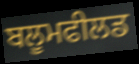
ਬਲੂਮਫੀਲਡ